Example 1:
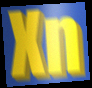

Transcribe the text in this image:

Xn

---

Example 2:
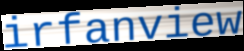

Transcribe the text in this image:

irfanview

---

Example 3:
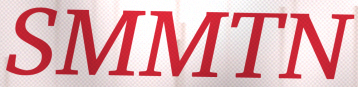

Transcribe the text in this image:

SMMTN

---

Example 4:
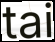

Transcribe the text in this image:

tai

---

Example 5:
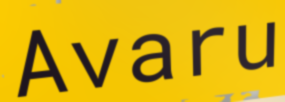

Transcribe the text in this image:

Avaru